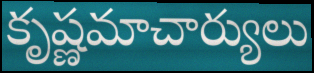
కృష్ణమాచార్యులు